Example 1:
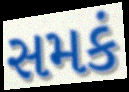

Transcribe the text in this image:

સમકં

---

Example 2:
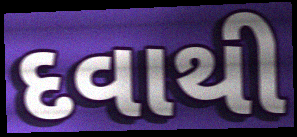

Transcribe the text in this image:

દવાથી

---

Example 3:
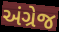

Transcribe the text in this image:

અંગ્રેજ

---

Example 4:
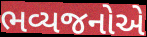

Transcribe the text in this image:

ભવ્યજનોએ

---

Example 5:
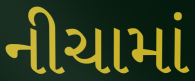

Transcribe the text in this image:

નીચામાં